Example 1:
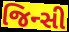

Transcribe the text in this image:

જિન્સી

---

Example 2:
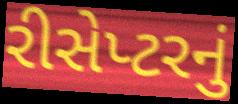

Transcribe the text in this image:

રીસેપ્ટરનું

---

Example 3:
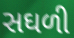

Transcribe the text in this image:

સઘળી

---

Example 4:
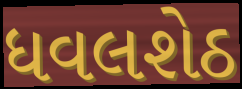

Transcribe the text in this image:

ધવલશેઠ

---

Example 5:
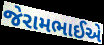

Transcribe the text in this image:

જેરામભાઈએ